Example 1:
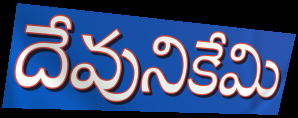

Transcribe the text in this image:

దేవునికేమి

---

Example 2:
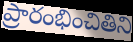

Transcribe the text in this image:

ప్రారంభించితిని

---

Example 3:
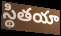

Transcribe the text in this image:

స్థితయా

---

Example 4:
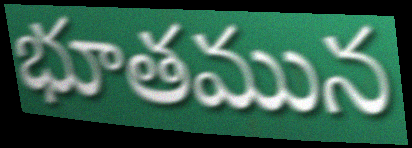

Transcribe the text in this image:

భూతమున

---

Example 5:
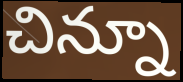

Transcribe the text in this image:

చిన్నూ